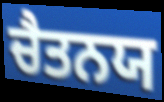
ਚੈਤਨਯ